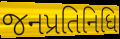
જનપ્રતિનિધિ